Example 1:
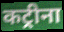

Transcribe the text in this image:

कट्रीना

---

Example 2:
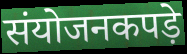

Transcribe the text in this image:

संयोजनकपड़े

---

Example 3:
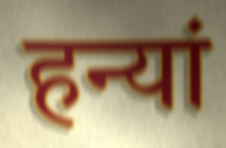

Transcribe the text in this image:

हन्यां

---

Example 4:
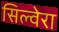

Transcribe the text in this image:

सिल्वेरा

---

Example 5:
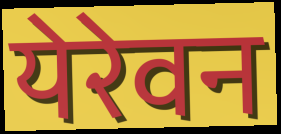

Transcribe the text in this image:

येरेवन